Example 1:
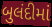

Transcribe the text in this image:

બુલંદીમાં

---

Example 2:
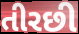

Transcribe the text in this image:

તીરછી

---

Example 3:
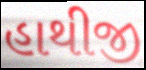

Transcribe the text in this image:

હાથીજી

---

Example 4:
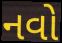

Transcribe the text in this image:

નવો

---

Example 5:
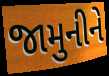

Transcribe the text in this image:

જામુનીને